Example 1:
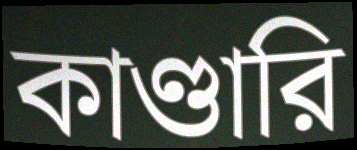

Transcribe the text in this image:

কাণ্ডারি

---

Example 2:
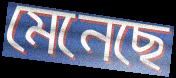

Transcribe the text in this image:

মেনেছে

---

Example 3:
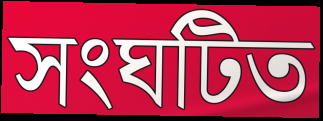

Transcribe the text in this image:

সংঘটিত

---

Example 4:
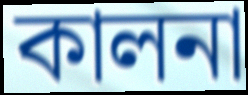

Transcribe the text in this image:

কালনা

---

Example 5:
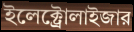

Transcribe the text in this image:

ইলেক্ট্রোলাইজার